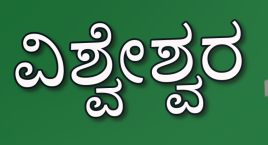
ವಿಶ್ವೇಶ್ವರ